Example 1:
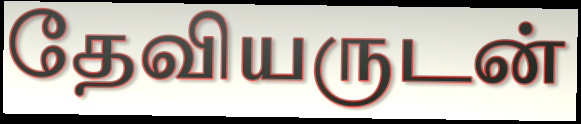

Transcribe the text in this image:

தேவியருடன்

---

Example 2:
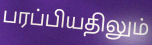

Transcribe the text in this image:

பரப்பியதிலும்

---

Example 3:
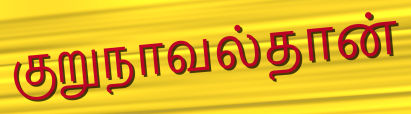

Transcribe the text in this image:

குறுநாவல்தான்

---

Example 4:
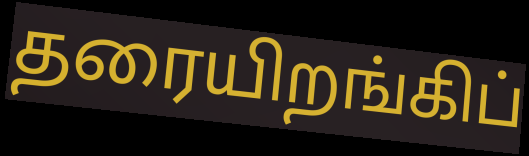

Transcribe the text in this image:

தரையிறங்கிப்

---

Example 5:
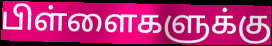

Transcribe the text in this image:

பிள்ளைகளுக்கு